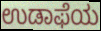
ಉಡಾಫೆಯ